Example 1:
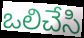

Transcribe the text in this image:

ఒలిచేసి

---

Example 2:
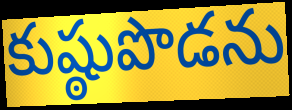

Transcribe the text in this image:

కుష్ఠుపొడను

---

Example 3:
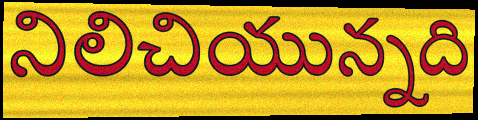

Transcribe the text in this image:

నిలిచియున్నది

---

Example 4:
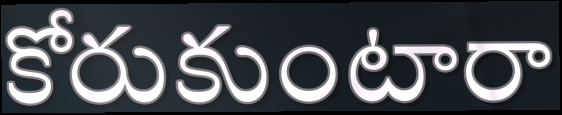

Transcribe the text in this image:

కోరుకుంటారా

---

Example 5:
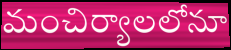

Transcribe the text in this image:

మంచిర్యాలలోనూ